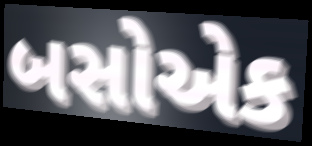
બસોએક